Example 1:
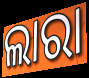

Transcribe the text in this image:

ଲାରା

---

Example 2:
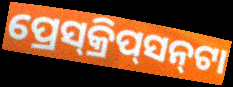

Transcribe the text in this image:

ପ୍ରେସ୍‌କ୍ରିପ୍‌ସନ୍‌ଟା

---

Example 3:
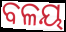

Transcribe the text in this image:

ବଳୟ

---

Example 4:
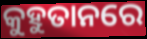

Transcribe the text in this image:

କୁହୁତାନରେ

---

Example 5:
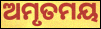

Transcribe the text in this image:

ଅମୃତମୟ